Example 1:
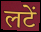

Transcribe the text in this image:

लटें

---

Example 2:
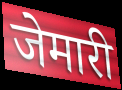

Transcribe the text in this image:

जेमारी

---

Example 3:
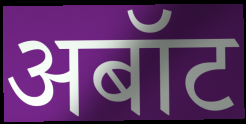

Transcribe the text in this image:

अबॉट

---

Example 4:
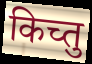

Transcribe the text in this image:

किच्तु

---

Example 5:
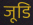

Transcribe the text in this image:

जूडि